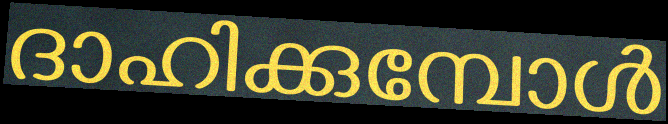
ദാഹിക്കുമ്പോൾ